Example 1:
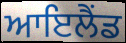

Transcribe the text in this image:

ਆਇਲੈੰਡ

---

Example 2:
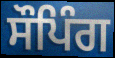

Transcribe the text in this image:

ਸੌਪਿੰਗ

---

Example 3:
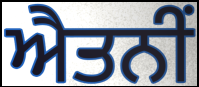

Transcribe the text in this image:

ਐਤਨੀਂ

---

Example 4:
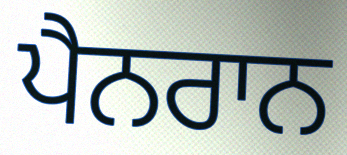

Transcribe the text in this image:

ਪੈਨਰਾਨ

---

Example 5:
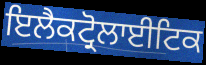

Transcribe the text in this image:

ਇਲੈਕਟ੍ਰੋਲਾਈਟਿਕ